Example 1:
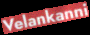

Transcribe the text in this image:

Velankanni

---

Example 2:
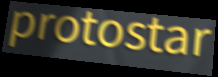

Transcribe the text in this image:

protostar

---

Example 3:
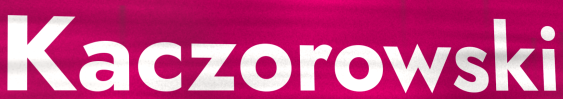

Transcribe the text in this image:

Kaczorowski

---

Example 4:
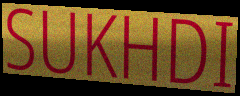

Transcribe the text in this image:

SUKHDI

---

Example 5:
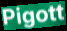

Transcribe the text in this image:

Pigott